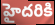
హైదరికి